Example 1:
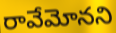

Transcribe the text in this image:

రావేమోనని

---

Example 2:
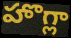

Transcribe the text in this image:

హొగ్లా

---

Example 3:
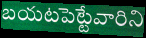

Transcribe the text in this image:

బయటపెట్టేవారిని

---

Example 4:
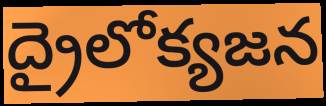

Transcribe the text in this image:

ద్రైలోక్యజన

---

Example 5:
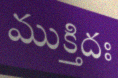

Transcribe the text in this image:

ముక్తిదః